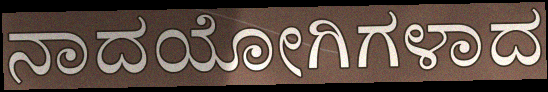
ನಾದಯೋಗಿಗಳಾದ